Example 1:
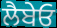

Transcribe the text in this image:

ਲੈਬੇਓ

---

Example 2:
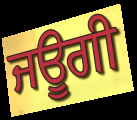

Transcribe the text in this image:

ਜਊਗੀ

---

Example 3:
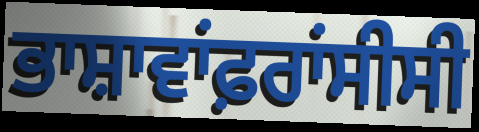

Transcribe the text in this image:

ਭਾਸ਼ਾਵਾਂਫ਼ਰਾਂਸੀਸੀ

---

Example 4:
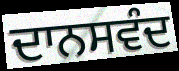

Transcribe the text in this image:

ਦਾਨਸਵੰਦ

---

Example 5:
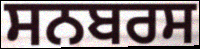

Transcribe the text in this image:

ਸਨਬਰਸ